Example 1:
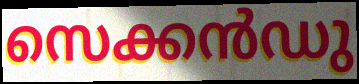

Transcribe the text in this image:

സെക്കൻഡു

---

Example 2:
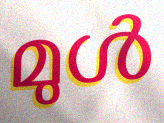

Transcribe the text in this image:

മുൾ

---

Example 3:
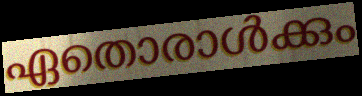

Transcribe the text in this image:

ഏതൊരാൾക്കും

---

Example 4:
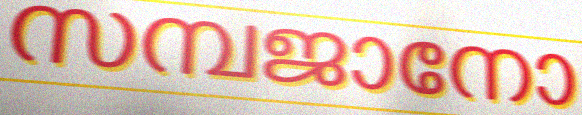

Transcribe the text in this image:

സമ്പജാനോ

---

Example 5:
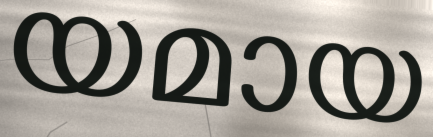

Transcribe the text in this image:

യമായ